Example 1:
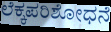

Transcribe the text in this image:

ಲೆಕ್ಕಪರಿಶೋಧನೆ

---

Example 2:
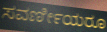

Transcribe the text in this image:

ಸವರ್ಣೀಯರೂ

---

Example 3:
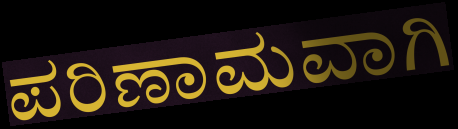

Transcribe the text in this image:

ಪರಿಣಾಮವಾಗಿ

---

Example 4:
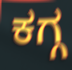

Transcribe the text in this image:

ಕಗ್ಗ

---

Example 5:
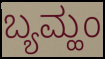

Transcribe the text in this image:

ಬ್ಯಮ್ಹಂ